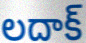
లదాక్